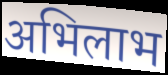
अभिलाभ